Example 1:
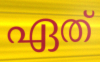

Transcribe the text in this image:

ഏത്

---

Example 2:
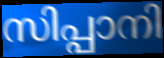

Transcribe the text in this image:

സിപ്പാനി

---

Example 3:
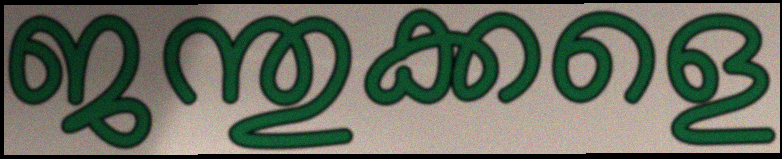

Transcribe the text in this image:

ജന്തുക്കളെ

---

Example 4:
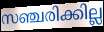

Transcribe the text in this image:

സഞ്ചരിക്കില്ല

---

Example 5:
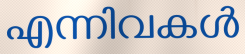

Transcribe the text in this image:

എന്നിവകൾ